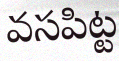
వసపిట్ట